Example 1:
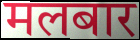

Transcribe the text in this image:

मलबार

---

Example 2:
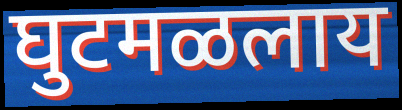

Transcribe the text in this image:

घुटमळलाय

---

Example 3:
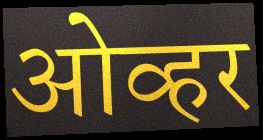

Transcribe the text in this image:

ओव्हर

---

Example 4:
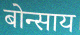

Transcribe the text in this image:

बोन्साय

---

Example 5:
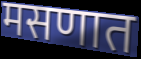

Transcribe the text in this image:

मसणात